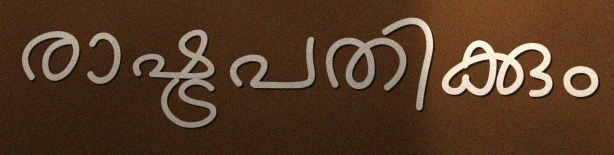
രാഷ്ട്രപതിക്കും